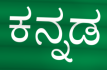
ಕನ್ನಡ